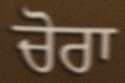
ਚੋਰਾ